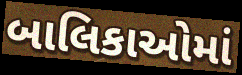
બાલિકાઓમાં